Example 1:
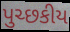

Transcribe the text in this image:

પુચ્છકીય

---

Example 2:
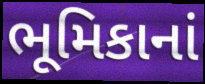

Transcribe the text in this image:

ભૂમિકાનાં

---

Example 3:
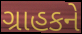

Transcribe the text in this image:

ગ્રાહકને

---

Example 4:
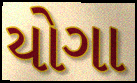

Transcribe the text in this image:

યોગા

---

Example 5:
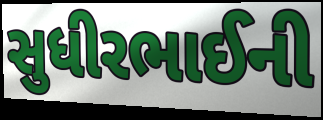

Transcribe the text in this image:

સુધીરભાઈની